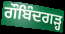
ਗੌਬਿੰਦਗੜ੍ਹ